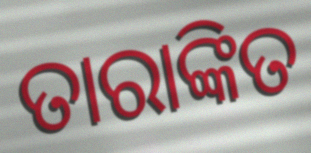
ତାରାଙ୍କିତ